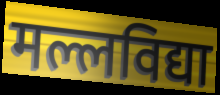
मल्लविद्या